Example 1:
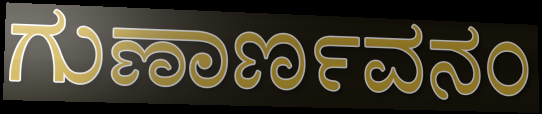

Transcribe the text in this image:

ಗುಣಾರ್ಣವನಂ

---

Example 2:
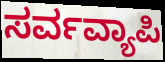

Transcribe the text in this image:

ಸರ್ವವ್ಯಾಪಿ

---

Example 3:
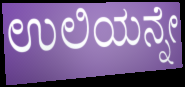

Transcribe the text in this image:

ಉಲಿಯನ್ನೇ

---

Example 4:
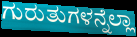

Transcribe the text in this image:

ಗುರುತುಗಳನ್ನೆಲ್ಲಾ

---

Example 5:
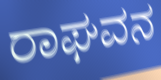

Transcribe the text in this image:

ರಾಘವನ